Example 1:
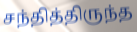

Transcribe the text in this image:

சந்தித்திருந்த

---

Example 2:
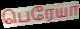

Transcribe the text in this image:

பெரேயா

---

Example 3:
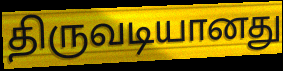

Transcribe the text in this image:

திருவடியானது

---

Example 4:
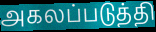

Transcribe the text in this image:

அகலப்படுத்தி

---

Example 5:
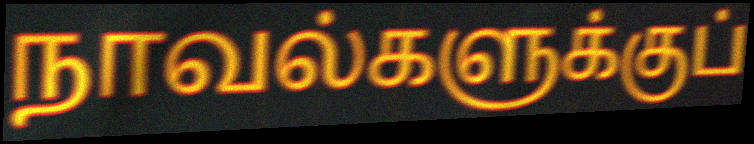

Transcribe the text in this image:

நாவல்களுக்குப்